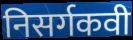
निसर्गकवी